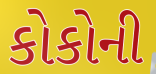
કોકોની